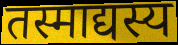
तस्माद्यस्य